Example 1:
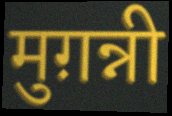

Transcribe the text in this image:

मुग़न्नी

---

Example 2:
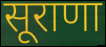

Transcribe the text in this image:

सूराणा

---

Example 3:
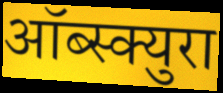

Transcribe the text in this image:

ऑब्स्क्युरा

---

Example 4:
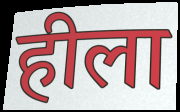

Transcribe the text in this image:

हीला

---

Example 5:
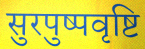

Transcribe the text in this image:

सुरपुष्पवृष्टि